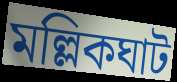
মল্লিকঘাট